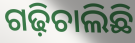
ଗଢ଼ିଚାଲିଛି